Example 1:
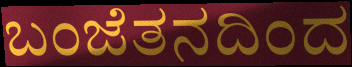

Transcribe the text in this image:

ಬಂಜೆತನದಿಂದ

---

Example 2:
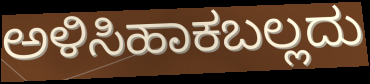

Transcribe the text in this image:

ಅಳಿಸಿಹಾಕಬಲ್ಲದು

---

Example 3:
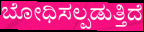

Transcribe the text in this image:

ಬೋಧಿಸಲ್ಪಡುತ್ತಿದೆ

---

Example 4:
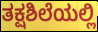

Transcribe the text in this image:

ತಕ್ಷಶಿಲೆಯಲ್ಲಿ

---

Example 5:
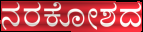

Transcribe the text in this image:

ನರಕೋಶದ